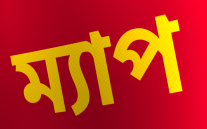
ম্যাপ